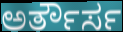
ಅರ್ತೌರ್ಸ